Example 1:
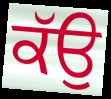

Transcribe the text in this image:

ਕੱਉ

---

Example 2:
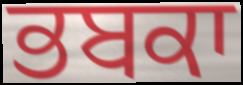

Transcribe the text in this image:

ਭਬਕਾ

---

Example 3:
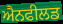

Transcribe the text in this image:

ਐਨਫੀਲਡ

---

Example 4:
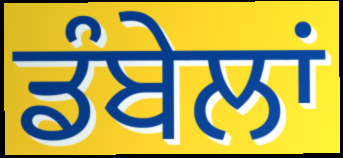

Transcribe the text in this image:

ਡੰਬੇਲਾਂ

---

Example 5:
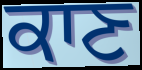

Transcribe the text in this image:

ਕਾਣ